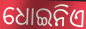
ଧୋଇନିଏ